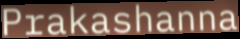
Prakashanna